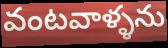
వంటవాళ్ళను